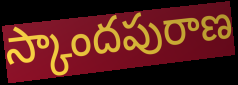
స్కాందపురాణ